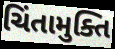
ચિંતામુક્તિ